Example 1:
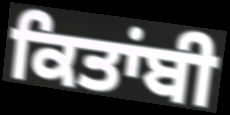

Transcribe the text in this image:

ਕਿਤਾਂਬੀ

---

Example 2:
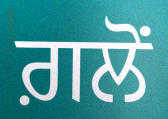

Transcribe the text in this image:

ਗ਼ਲੋਂ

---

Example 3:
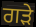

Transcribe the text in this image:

ਗੜੇ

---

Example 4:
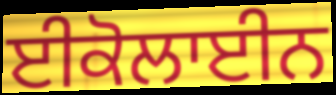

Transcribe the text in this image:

ਈਕੋਲਾਈਨ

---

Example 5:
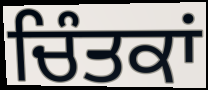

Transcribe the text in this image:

ਚਿੰਤਕਾਂ